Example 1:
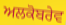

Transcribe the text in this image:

ਅਲਕੋਬਰੇਵ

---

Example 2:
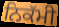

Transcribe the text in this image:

ਨਿਕੱਮੀ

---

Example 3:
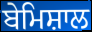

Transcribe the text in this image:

ਬੇਮਿਸ਼ਾਲ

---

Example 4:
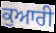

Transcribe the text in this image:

ਕੁਆਰੀ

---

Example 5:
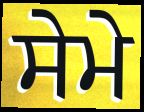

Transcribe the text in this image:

ਸੇਮੇ